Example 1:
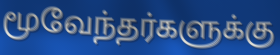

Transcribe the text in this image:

மூவேந்தர்களுக்கு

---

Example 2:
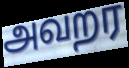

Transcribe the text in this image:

அவறர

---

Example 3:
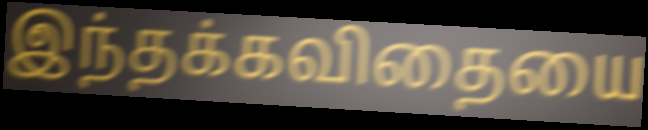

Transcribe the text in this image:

இந்தக்கவிதையை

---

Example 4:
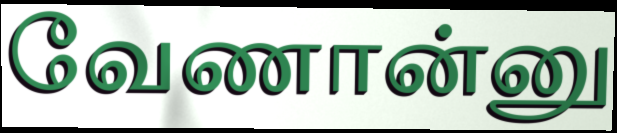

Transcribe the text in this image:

வேணான்னு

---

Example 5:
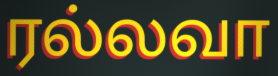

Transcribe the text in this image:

ரல்லவா